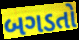
બગડતો